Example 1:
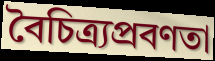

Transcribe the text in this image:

বৈচিত্র্যপ্রবণতা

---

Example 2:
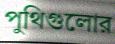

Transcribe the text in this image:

পুথিগুলোর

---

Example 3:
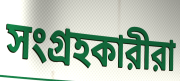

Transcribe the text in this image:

সংগ্রহকারীরা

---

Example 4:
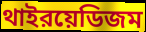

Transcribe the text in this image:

থাইরয়েডিজম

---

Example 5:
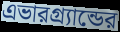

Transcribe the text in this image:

এভারগ্র্যান্ডের